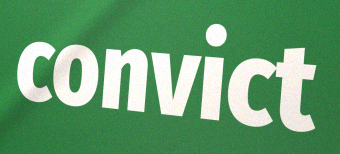
convict